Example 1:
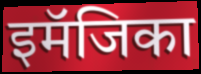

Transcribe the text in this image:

इमॅजिका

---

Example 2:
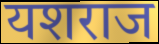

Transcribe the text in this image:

यशराज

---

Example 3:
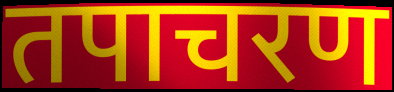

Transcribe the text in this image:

तपाचरण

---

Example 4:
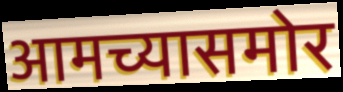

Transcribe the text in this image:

आमच्यासमोर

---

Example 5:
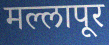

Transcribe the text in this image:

मल्लापूर